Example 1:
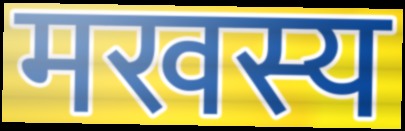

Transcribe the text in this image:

मखस्य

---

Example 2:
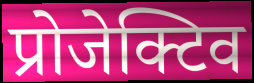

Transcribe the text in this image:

प्रोजेक्टिव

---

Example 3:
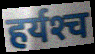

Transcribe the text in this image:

हर्यश्च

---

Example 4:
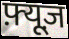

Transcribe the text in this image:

फ़्यूज़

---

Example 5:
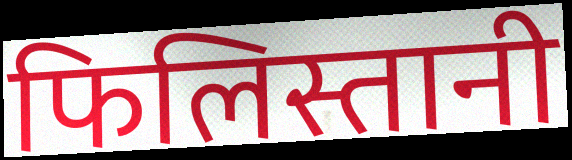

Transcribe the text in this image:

फिलिस्तानी